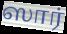
ஸார்